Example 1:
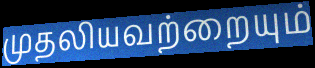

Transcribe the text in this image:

முதலியவற்றையும்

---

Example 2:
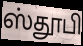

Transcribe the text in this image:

ஸ்தூபி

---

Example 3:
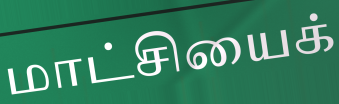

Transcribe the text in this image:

மாட்சியைக்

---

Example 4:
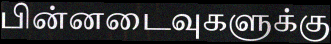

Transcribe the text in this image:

பின்னடைவுகளுக்கு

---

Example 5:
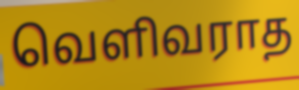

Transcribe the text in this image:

வெளிவராத